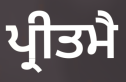
ਪ੍ਰੀਤਮੈ